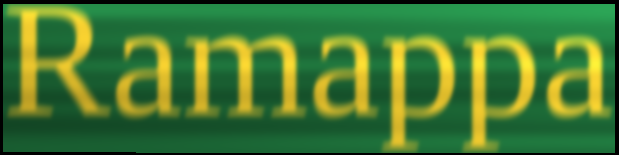
Ramappa